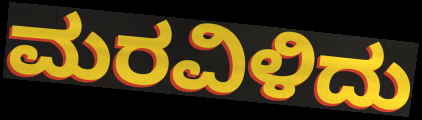
ಮರವಿಳಿದು